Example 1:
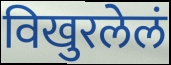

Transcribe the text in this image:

विखुरलेलं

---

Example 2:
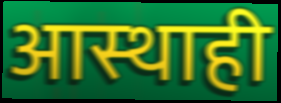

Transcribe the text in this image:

आस्थाही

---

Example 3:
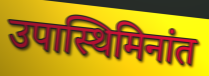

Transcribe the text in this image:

उपास्थिमिनांत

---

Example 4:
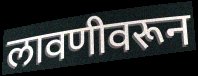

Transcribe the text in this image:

लावणीवरून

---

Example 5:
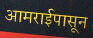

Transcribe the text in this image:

आमराईपासून